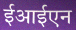
ईआईएन